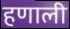
हणाली